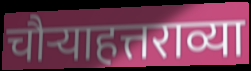
चौऱ्याहत्तराव्या